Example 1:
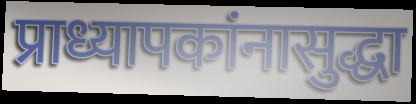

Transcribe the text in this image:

प्राध्यापकांनासुद्धा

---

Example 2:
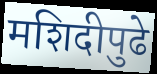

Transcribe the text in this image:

मशिदीपुढे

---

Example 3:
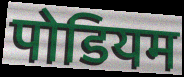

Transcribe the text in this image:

पोडियम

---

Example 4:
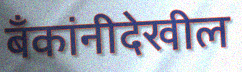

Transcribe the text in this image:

बँकांनीदेखील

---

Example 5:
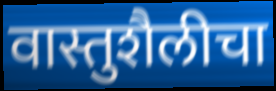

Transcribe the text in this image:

वास्तुशैलीचा